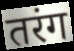
तरंग